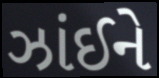
ઝાંઈને